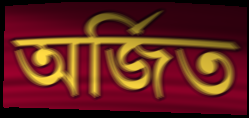
অৰ্জিত